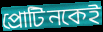
প্রোটিনকেই